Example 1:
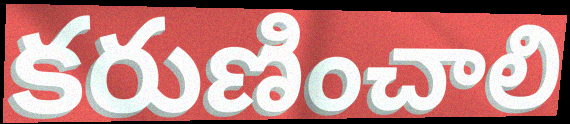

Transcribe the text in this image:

కరుణించాలి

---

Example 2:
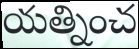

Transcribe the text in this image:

యత్నించ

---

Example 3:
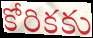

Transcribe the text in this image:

కోరికకు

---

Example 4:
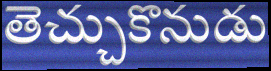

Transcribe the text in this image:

తెచ్చుకొనుడు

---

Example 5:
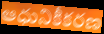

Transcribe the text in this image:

ఆధునికీకరణ